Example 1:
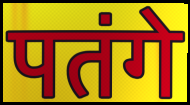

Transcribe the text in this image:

पतंगे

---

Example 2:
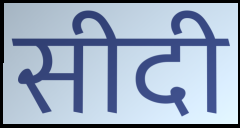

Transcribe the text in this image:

सीदी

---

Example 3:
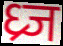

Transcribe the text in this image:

ध्र्ज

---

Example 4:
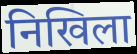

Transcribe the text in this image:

निखिला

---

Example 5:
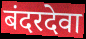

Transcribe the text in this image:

बंदरदेवा